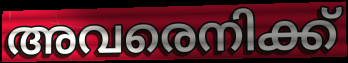
അവരെനിക്ക്